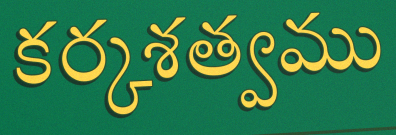
కర్కశత్వము